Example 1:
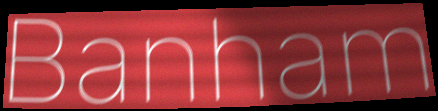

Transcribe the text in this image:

Banham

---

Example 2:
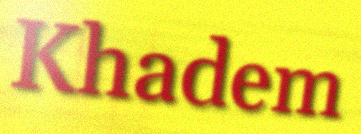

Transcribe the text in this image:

Khadem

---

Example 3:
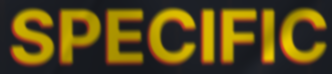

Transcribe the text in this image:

SPECIFIC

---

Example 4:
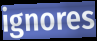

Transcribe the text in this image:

ignores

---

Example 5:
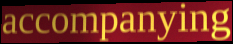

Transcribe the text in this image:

accompanying